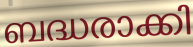
ബദ്ധരാക്കി